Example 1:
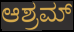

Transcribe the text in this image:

ಆಶ್ರಮ್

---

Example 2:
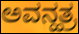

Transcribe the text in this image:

ಅವನ್ಹತ್ರ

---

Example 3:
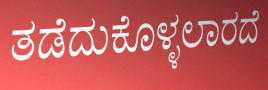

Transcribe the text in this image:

ತಡೆದುಕೊಳ್ಳಲಾರದೆ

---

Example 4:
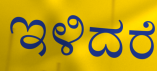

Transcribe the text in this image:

ಇಳಿದರೆ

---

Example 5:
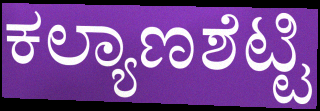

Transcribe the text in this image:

ಕಲ್ಯಾಣಶೆಟ್ಟಿ